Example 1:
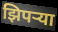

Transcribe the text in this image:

झिपऱ्या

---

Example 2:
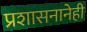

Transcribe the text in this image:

प्रशासनानेही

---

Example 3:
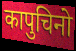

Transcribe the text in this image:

कापुचिनो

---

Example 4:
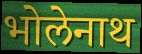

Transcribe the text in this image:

भोलेनाथ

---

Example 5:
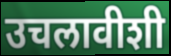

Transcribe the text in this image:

उचलावीशी